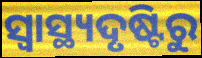
ସ୍ୱାସ୍ଥ୍ୟଦୃଷ୍ଟିରୁ